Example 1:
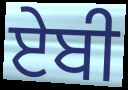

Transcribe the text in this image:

ਏਬੀ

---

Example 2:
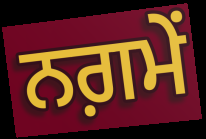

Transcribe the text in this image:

ਨਗ਼ਮੇਂ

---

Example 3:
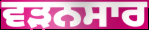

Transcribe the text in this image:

ਵੜਨਸਾਰ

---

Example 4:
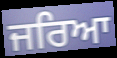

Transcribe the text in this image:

ਜਰਿਆ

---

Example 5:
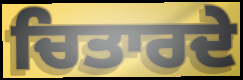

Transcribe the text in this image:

ਚਿਤਾਰਦੇ